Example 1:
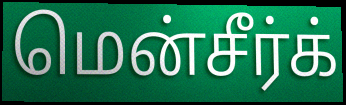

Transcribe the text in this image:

மென்சீர்க்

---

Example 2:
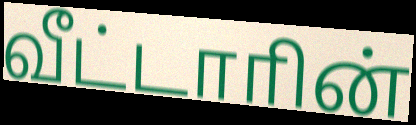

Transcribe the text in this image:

வீட்டாரின்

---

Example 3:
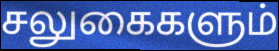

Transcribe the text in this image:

சலுகைகளும்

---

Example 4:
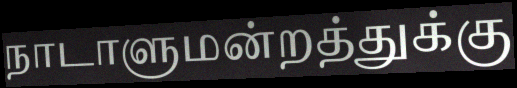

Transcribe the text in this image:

நாடாளுமன்றத்துக்கு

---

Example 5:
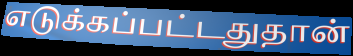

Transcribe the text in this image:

எடுக்கப்பட்டதுதான்